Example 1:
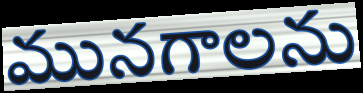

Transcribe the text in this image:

మునగాలను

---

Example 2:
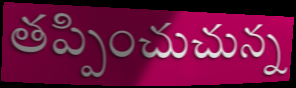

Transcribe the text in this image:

తప్పించుచున్న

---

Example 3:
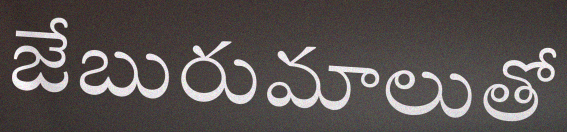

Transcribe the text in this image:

జేబురుమాలుతో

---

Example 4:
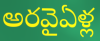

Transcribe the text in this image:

అరవైఏళ్ల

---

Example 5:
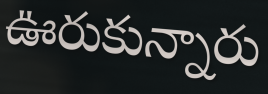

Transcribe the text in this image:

ఊరుకున్నారు